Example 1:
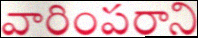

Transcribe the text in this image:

వారింపరాని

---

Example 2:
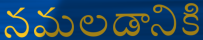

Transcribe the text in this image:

నమలడానికి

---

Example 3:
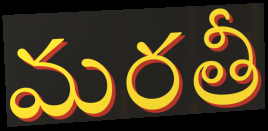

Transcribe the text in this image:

మరతీ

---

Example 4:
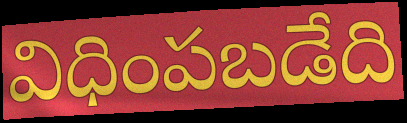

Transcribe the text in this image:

విధింపబడేది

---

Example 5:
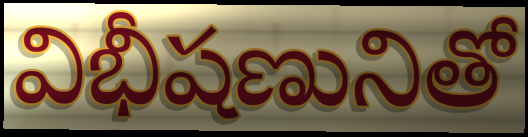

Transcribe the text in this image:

విభీషణునితో